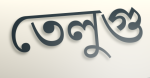
তেলুগু